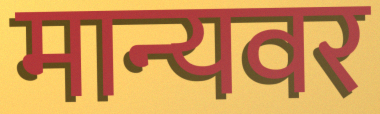
मान्‍यवर